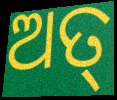
ଅତ୍